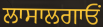
ਲਾਸਾਲਗਾਓਂ